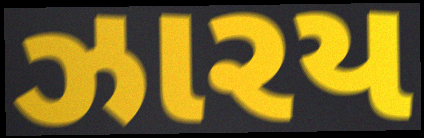
ઝારય